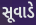
સૂવાડે